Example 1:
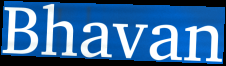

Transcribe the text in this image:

Bhavan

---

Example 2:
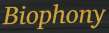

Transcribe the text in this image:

Biophony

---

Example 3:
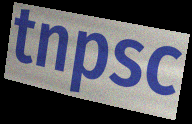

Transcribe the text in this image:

tnpsc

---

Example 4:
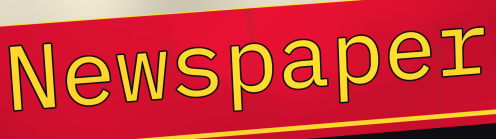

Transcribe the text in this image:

Newspaper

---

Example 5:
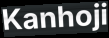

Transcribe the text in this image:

Kanhoji